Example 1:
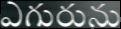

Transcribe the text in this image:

ఎగురును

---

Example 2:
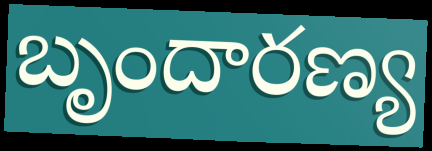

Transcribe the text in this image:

బృందారణ్య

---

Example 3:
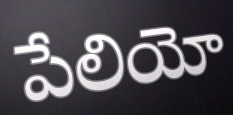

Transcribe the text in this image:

పేలియో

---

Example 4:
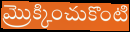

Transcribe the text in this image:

మ్రొక్కించుకొంటి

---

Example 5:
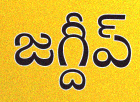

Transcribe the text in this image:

జగ్దీప్